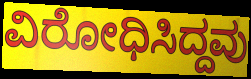
ವಿರೋಧಿಸಿದ್ದವು